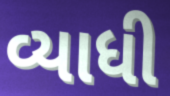
વ્યાધી